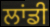
ਲਾਂਡੀ